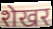
शेखर